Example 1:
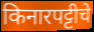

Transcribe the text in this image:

किनारपट्टीचे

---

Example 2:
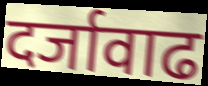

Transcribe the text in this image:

दर्जावाढ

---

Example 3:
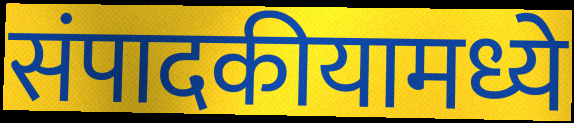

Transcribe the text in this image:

संपादकीयामध्ये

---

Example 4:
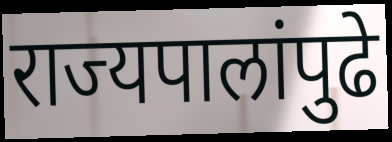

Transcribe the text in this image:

राज्यपालांपुढे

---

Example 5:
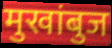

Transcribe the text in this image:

मुखांबुज